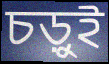
চড়ুই